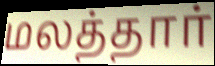
மலத்தார்